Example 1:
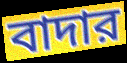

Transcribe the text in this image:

বাদার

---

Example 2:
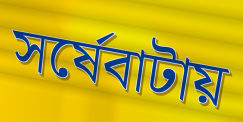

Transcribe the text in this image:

সর্ষেবাটায়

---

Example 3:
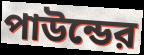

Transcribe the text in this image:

পাউন্ডের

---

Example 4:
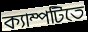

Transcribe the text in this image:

ক্যাম্পটিতে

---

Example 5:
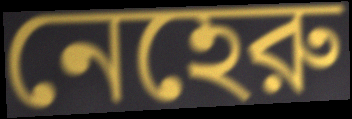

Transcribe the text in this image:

নেহেরু